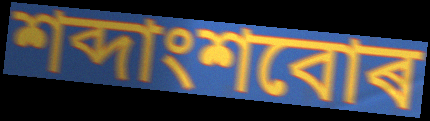
শব্দাংশবোৰ